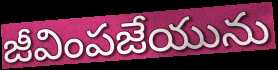
జీవింపజేయును